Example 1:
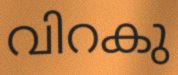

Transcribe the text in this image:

വിറകു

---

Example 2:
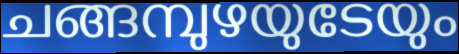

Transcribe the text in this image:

ചങ്ങമ്പുഴയുടേയും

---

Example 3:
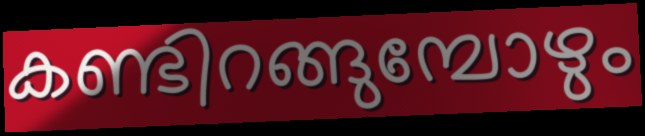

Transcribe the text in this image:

കണ്ടിറങ്ങുമ്പോഴും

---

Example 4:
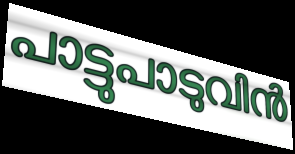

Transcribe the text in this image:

പാട്ടുപാടുവിൻ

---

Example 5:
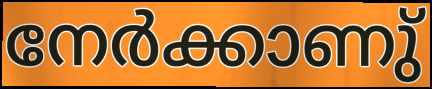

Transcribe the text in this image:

നേർക്കാണു്